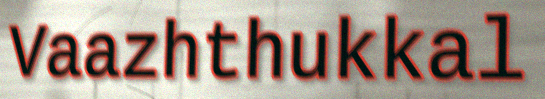
Vaazhthukkal